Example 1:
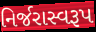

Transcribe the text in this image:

નિર્જરાસ્વરૂપ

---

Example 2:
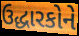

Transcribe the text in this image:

ઉદ્ધારકોને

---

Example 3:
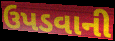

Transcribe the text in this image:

ઉપડવાની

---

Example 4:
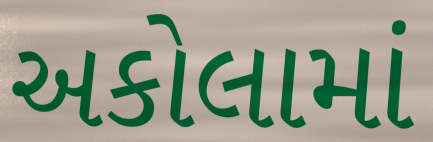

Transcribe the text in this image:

અકોલામાં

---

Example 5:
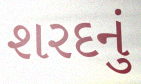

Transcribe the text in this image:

શરદનું